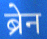
ब्रेन